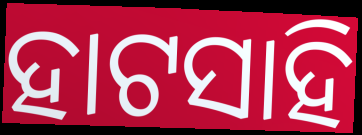
ହାଟସାହି